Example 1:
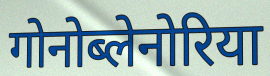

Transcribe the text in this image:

गोनोब्लेनोरिया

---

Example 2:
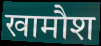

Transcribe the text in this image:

खामौश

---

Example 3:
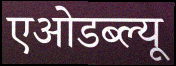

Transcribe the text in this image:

एओडब्ल्यू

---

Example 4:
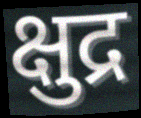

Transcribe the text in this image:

क्षुद्र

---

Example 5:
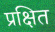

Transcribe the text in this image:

प्रक्षित